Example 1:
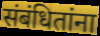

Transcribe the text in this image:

संबंधितांना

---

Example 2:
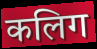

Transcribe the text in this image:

कलिग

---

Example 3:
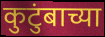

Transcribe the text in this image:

कुटुंबाच्या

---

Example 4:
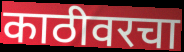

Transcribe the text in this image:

काठीवरचा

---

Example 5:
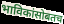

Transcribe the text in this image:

भाविकांसोबतच